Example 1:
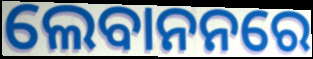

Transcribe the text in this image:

ଲେବାନନରେ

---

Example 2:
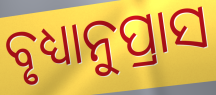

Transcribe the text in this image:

ବୃଧ୍ୟାନୁପ୍ରାସ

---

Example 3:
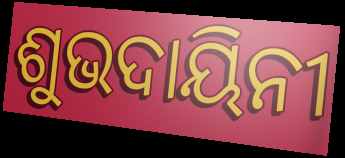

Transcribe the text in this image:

ଶୁଭଦାୟିନୀ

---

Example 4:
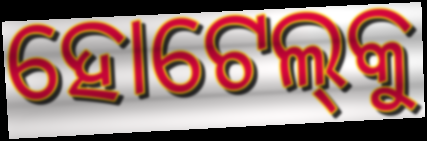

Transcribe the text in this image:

ହୋଟେଲ୍‌କୁ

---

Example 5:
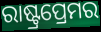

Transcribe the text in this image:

ରାଷ୍ଟ୍ରପ୍ରେମର